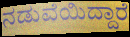
ನಡುವೆಯಿದ್ದಾರೆ